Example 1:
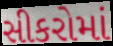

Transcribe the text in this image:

સીકરોમાં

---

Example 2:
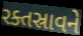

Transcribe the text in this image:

રક્તસ્રાવને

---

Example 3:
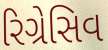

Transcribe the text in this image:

રિગ્રેસિવ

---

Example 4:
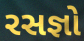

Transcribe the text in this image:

રસજ્ઞો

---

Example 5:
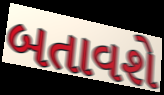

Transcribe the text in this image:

બતાવશે